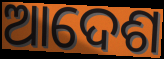
ଆଦେଶ